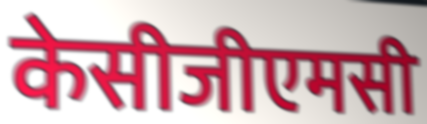
केसीजीएमसी